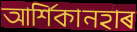
আৰ্শিকানহাৰ